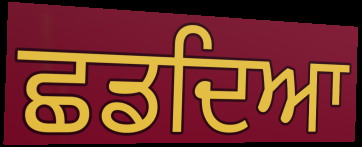
ਛਡਦਿਆ